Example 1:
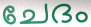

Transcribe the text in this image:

ചേദം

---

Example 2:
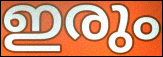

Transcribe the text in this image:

ഇരും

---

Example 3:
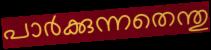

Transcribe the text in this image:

പാർക്കുന്നതെന്തു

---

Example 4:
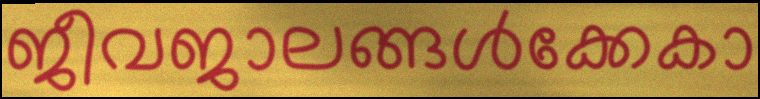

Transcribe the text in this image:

ജീവജാലങ്ങൾക്കേകാ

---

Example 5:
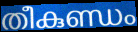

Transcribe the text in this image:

തീകുണ്ഡം